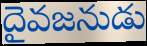
దైవజనుడు